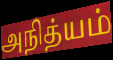
அநித்யம்